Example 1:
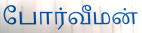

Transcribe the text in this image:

போர்வீமன்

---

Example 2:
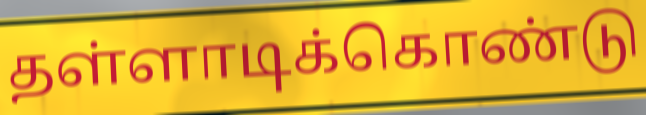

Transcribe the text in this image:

தள்ளாடிக்கொண்டு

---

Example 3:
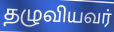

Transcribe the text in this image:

தழுவியவர்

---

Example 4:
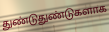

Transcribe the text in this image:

துண்டுதுண்டுகளாக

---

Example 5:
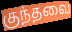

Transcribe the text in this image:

குந்தவை